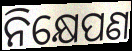
ନିକ୍ଷେପଣ